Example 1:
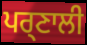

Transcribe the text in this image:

ਪਰ੍ਣਾਲੀ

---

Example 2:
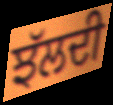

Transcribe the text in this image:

ਝੱਲਦੀ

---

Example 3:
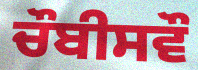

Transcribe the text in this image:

ਚੌਬੀਸਵੌ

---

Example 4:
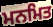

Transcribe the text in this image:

ਮਨਮਿਤ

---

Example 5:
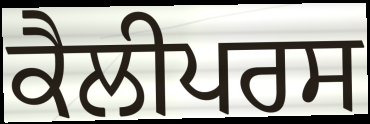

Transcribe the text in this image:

ਕੈਲੀਪਰਸ